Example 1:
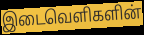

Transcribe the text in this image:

இடைவெளிகளின்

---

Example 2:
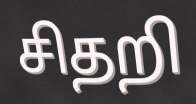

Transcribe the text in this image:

சிதறி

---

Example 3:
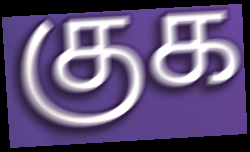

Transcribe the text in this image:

குக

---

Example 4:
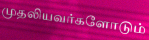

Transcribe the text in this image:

முதலியவர்களோடும்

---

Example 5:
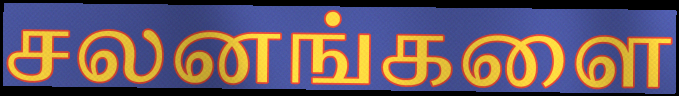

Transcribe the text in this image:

சலனங்களை